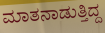
ಮಾತನಾಡುತ್ತಿದ್ದ